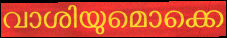
വാശിയുമൊക്കെ